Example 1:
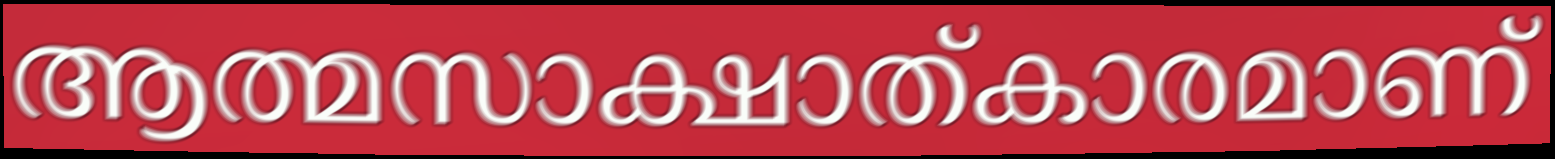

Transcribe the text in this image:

ആത്മസാക്ഷാത്കാരമാണ്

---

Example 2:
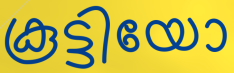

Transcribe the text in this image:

കൂട്ടിയോ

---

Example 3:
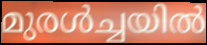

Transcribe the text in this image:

മുരൾച്ചയിൽ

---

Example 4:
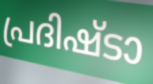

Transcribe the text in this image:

പ്രദിഷ്ടാ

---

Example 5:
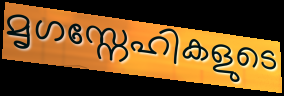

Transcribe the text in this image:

മൃഗസ്നേഹികളുടെ